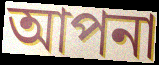
আপনা